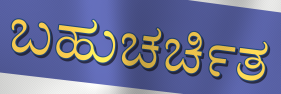
ಬಹುಚರ್ಚಿತ